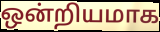
ஒன்றியமாக